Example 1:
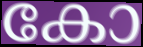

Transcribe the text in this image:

കോ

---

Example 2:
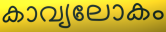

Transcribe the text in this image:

കാവ്യലോകം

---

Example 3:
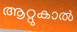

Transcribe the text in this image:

ആറ്റുകാൽ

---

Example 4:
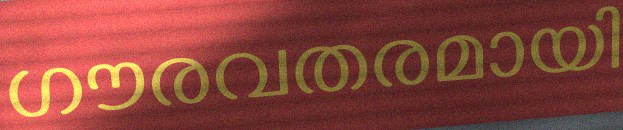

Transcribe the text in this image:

ഗൗരവതരമായി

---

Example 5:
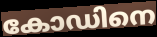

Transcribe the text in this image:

കോഡിനെ